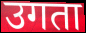
उगता